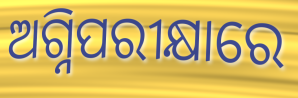
ଅଗ୍ନିପରୀକ୍ଷାରେ